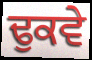
ਢੁਕਵੇ